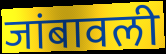
जांबावली